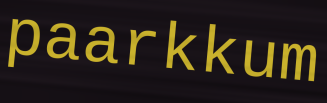
paarkkum